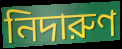
নিদাৰুণ